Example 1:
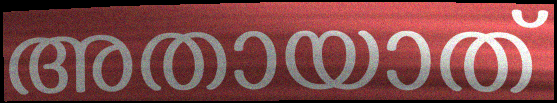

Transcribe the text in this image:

അതായാത്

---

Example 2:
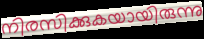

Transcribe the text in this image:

നിരസിക്കുകയായിരുന്നു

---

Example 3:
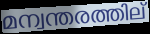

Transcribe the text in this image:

മന്വന്തരത്തില്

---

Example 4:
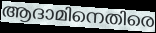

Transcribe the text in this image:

ആദാമിനെതിരെ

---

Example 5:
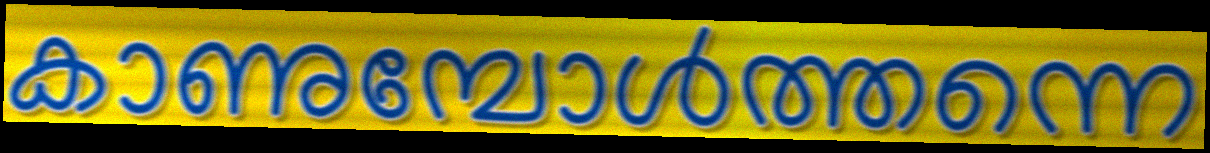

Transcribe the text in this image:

കാണുമ്പോൾത്തന്നെ